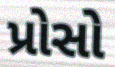
પ્રોસો